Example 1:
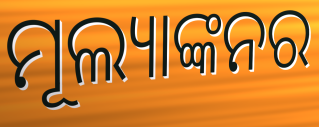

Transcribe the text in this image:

ମୂଲ୍ୟାଙ୍କନର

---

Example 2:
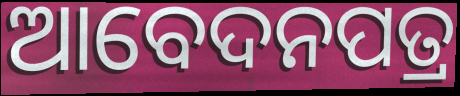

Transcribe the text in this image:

ଆବେଦନପତ୍ର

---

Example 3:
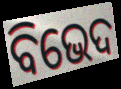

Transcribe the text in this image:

ବିଭେଦ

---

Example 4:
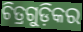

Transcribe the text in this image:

ଚିତ୍ରଗୁଡ଼ିକର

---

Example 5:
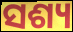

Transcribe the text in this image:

ସଶ୍ୟ